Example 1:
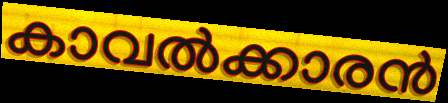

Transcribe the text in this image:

കാവൽക്കാരൻ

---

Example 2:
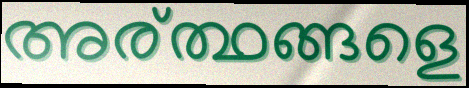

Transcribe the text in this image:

അര്ത്ഥങ്ങളെ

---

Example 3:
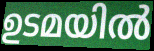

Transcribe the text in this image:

ഉടമയിൽ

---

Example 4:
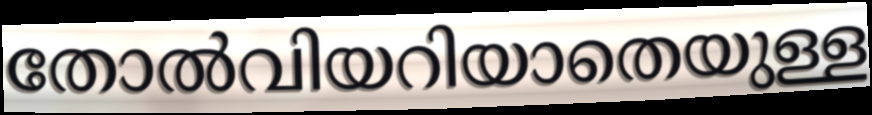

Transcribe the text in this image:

തോൽവിയറിയാതെയുള്ള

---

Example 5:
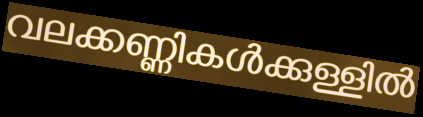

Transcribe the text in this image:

വലക്കണ്ണികൾക്കുള്ളിൽ